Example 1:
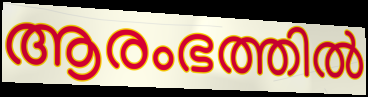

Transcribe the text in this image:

ആരംഭത്തിൽ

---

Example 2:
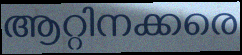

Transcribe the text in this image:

ആറ്റിനക്കരെ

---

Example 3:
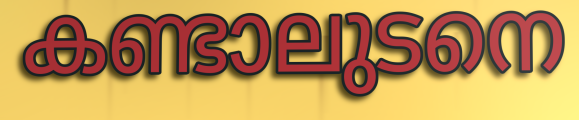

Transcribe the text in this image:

കണ്ടാലുടനെ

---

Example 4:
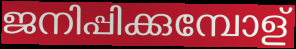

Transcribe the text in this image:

ജനിപ്പിക്കുമ്പോള്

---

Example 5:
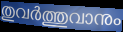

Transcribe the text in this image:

തുവർത്തുവാനും